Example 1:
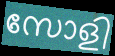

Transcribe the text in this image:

സോളി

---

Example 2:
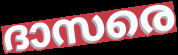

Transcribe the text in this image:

ദാസരെ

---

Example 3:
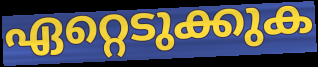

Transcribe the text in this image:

ഏറ്റെടുക്കുക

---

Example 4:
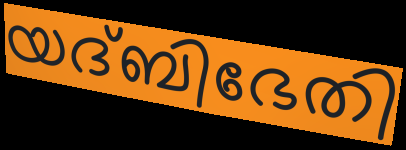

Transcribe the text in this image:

യദ്ബിഭേതി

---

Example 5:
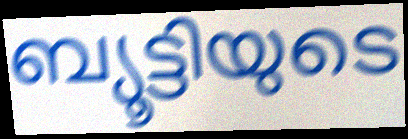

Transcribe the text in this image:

ബ്യൂട്ടിയുടെ